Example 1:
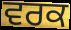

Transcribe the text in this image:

ਵਰਕ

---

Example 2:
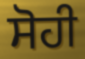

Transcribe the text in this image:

ਸੋਹੀ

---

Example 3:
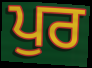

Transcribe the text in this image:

ਪੁਰ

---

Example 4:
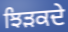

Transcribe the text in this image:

ਝਿੜਕਦੇ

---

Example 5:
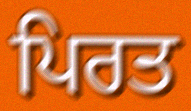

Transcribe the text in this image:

ਪਿਰਤ